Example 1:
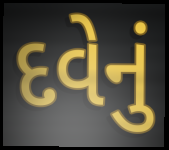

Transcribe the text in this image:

દવેનું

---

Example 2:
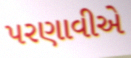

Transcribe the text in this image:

પરણાવીએ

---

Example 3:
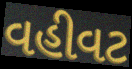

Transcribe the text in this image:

વહીવટ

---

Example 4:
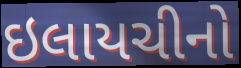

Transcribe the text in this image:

ઇલાયચીનો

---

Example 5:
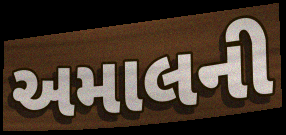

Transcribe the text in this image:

અમાલની